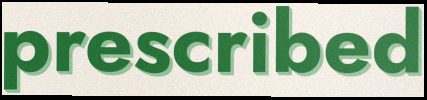
prescribed